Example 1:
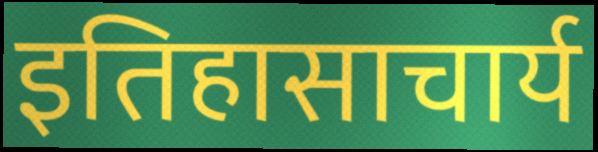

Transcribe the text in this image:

इतिहासाचार्य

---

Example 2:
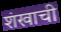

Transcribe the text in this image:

शंखाची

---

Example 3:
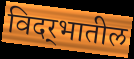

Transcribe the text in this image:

विदर्भातील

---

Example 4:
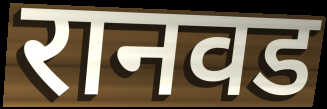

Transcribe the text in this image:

रानवड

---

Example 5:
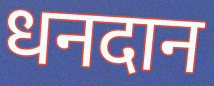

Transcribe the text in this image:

धनदान